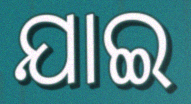
ଯାଇ